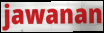
jawanan